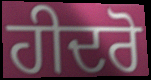
ਹੀਦਰੋ